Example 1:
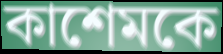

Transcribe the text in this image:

কাশেমকে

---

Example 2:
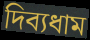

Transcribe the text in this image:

দিব্যধাম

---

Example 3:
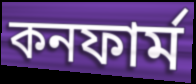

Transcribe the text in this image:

কনফার্ম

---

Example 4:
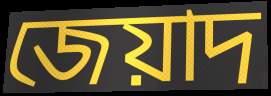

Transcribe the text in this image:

জেয়াদ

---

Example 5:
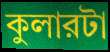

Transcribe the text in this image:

কুলারটা